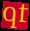
qt